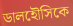
ডালহৌসিকে